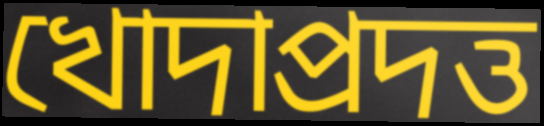
খোদাপ্রদত্ত